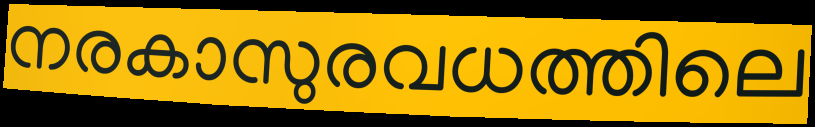
നരകാസുരവധത്തിലെ